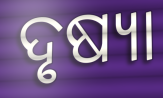
ଦୃଷ୍ୟା